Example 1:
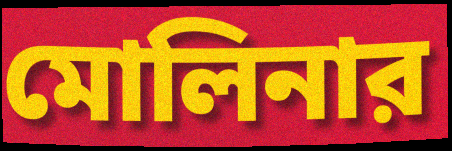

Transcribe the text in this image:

মোলিনার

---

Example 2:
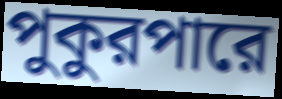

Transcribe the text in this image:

পুকুরপারে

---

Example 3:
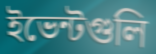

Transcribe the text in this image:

ইভেন্টগুলি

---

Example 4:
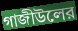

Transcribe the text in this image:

গাজীউলের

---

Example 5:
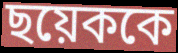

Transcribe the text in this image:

ছয়েককে